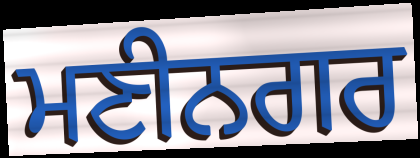
ਮਣੀਨਗਰ